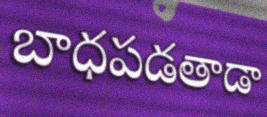
బాధపడతాడా